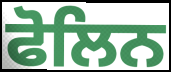
ਫੋਲਿਨ